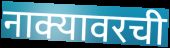
नाक्यावरची